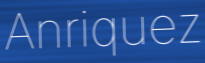
Anriquez